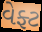
વેફ્ટ